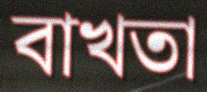
বাখতা